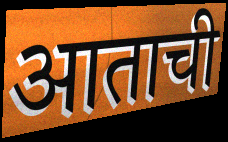
आताची